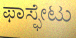
ಫಾಸ್ಫೇಟು